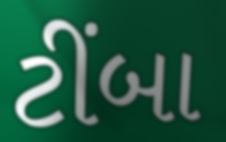
ટીંબા